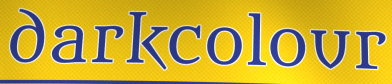
darkcolour